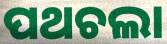
ପଥଚଲା